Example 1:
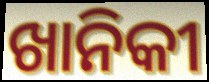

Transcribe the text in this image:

ଖାନିକୀ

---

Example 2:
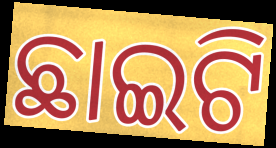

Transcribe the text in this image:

ଛାଇଟି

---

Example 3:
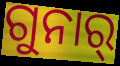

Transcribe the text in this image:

ଗୁନାର୍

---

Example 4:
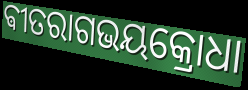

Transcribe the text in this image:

ଵୀତରାଗଭୟକ୍ରୋଧା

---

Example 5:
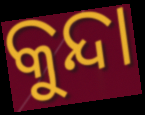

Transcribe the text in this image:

କୁନ୍ଦା